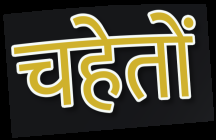
चहेतों